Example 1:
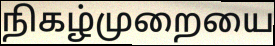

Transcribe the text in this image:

நிகழ்முறையை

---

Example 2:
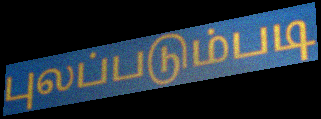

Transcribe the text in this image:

புலப்படும்படி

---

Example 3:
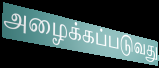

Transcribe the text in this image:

அழைக்கப்படுவது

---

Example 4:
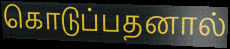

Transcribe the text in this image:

கொடுப்பதனால்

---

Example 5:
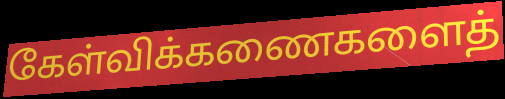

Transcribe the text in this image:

கேள்விக்கணைகளைத்